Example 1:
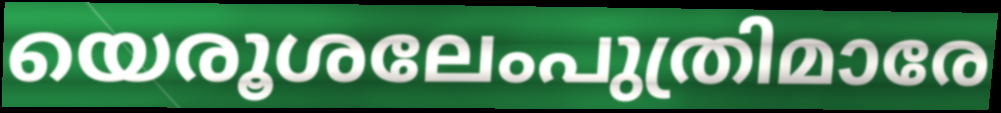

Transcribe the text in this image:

യെരൂശലേംപുത്രിമാരേ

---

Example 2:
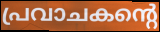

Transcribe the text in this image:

പ്രവാചകന്റെ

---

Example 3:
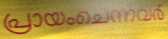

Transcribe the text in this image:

പ്രായംചെന്നവർ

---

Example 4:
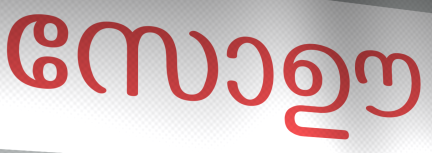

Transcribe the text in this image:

സോഊ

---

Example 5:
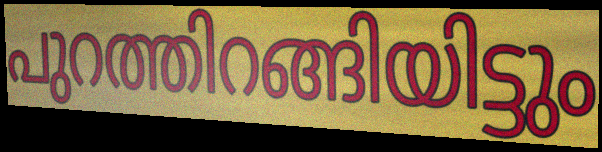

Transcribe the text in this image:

പുറത്തിറങ്ങിയിട്ടും